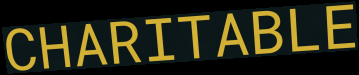
CHARITABLE